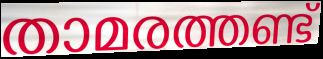
താമരത്തണ്ട്